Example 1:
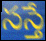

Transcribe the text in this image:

సస్తే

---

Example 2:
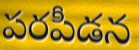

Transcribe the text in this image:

పరపీడన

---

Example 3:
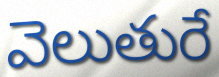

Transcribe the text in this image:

వెలుతురే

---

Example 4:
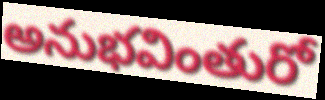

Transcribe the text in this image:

అనుభవింతురో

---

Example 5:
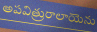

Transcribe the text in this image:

అపవిత్రురాలాయెను